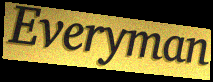
Everyman